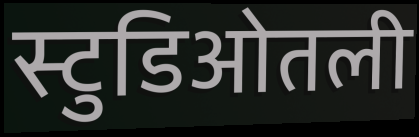
स्टुडिओतली